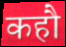
कहौ